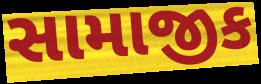
સામાજીક